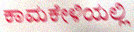
ಕಾಮಕೇಳಿಯಲ್ಲಿ